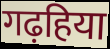
गढ़हिया